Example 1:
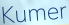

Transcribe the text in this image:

Kumer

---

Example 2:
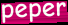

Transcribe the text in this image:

peper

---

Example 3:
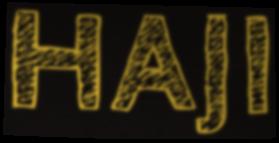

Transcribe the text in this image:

HAJI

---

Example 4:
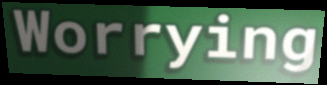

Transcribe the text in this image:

Worrying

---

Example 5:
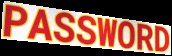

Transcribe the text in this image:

PASSWORD